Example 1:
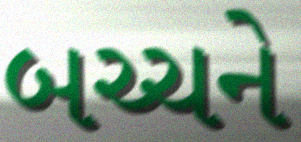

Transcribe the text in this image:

બચ્ચને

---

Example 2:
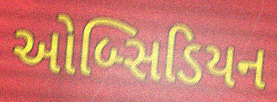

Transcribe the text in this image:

ઓબ્સિડિયન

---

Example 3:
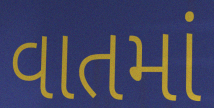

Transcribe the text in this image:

વાતમાં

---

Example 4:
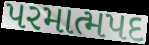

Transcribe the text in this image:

પરમાત્મપદ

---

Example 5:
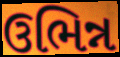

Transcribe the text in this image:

ઉભિન્ન